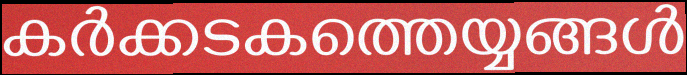
കർക്കടകത്തെയ്യങ്ങൾ